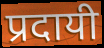
प्रदायी